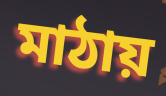
মাঠায়